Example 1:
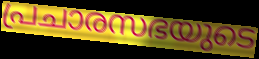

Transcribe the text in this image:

പ്രചാരസഭയുടെ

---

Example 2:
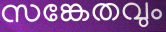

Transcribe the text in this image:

സങ്കേതവും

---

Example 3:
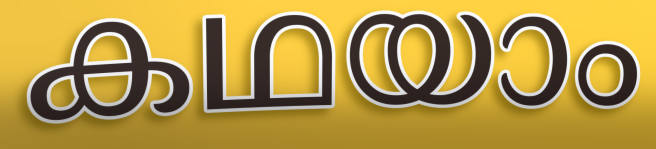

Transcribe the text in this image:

കഥയാം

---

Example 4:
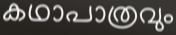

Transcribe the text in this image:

കഥാപാത്രവും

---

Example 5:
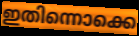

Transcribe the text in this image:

ഇതിന്നൊക്കെ